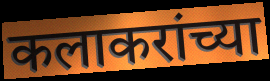
कलाकरांच्या